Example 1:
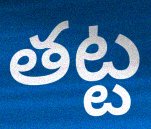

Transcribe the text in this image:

తట్ట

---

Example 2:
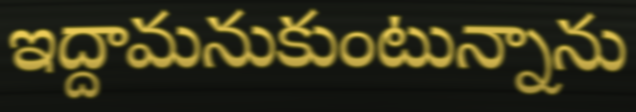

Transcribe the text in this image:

ఇద్దామనుకుంటున్నాను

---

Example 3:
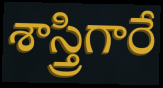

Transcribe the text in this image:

శాస్త్రిగారే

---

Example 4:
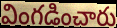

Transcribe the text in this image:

వింగడించారు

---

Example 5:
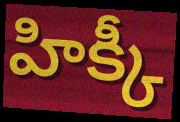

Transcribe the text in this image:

హిక్కీ